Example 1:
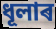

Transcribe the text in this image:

ধূলাৰ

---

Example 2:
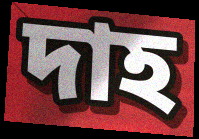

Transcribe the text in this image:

দাহ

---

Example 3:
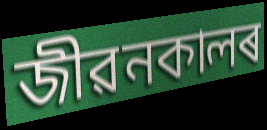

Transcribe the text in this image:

জীৱনকালৰ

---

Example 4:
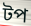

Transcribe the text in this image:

টপ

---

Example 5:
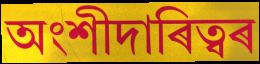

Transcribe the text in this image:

অংশীদাৰিত্বৰ